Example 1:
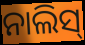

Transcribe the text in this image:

ନାଲିସ୍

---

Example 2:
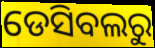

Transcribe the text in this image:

ଡେସିବଲରୁ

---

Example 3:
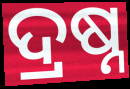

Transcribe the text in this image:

ଦ୍ରଷ୍ନ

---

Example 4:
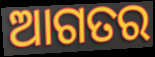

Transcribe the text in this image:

ଆଗତର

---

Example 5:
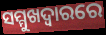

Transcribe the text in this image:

ସମ୍ମୁଖଦ୍ୱାରରେ